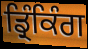
ਡ੍ਰਿੰਕਿੰਗ